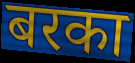
बरका